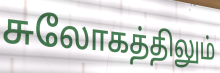
சுலோகத்திலும்